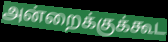
அன்றைக்குக்கூட